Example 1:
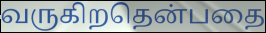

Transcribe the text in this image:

வருகிறதென்பதை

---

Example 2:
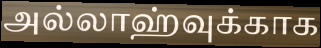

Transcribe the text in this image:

அல்லாஹ்வுக்காக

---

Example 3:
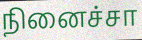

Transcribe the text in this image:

நினைச்சா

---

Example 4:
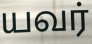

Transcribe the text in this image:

யவர்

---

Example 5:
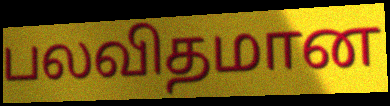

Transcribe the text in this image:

பலவிதமான